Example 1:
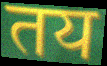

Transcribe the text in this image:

तय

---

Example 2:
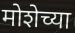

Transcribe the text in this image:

मोशेच्या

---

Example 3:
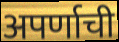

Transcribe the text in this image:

अपर्णाची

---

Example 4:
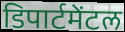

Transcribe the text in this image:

डिपार्टमेंटल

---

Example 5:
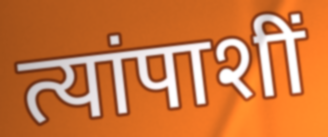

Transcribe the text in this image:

त्यांपाशीं